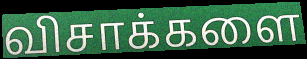
விசாக்களை